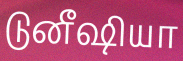
டுனீஷியா